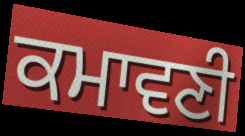
ਕਮਾਵਣੀ